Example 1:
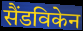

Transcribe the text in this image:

सैंडविकेन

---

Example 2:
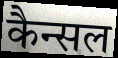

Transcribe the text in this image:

कैन्सल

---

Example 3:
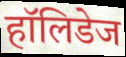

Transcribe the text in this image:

हॉलिडेज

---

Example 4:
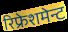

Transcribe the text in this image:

रिफ्रेशमेन्ट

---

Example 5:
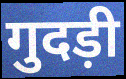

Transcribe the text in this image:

गुदड़ी